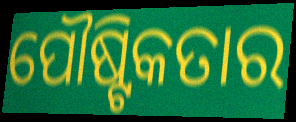
ପୌଷ୍ଟିକତାର